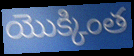
యొక్కింత